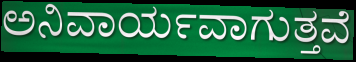
ಅನಿವಾರ್ಯವಾಗುತ್ತವೆ